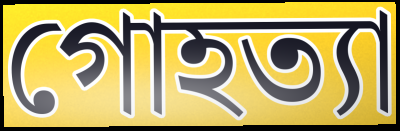
গোহত্যা